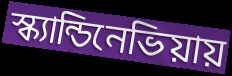
স্ক্যান্ডিনেভিয়ায়